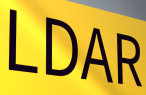
LDAR